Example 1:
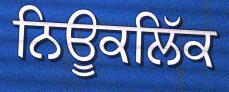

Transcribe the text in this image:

ਨਿਊਕਲਿੱਕ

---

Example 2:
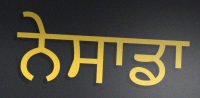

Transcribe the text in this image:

ਨੇਸਾਡਾ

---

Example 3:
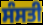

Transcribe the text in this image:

ਸੰਸਤੀ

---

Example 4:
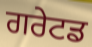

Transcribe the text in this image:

ਗਰੇਟਡ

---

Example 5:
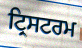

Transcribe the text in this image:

ਟ੍ਰਿਸਟਰਮ